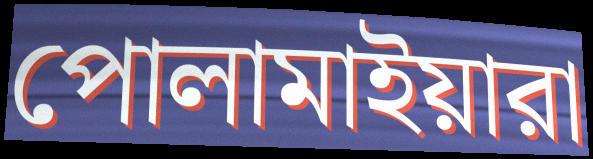
পোলামাইয়ারা